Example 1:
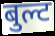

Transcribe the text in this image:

बुल्ट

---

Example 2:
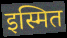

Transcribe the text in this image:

इस्मित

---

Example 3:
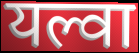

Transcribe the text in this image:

यल्वा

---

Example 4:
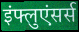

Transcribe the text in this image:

इंफ्लुएंसर्स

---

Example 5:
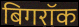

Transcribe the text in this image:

बिगरॉक